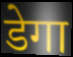
डेगा